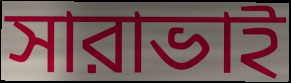
সারাভাই